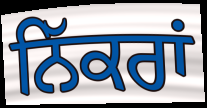
ਨਿੱਕਰਾਂ